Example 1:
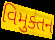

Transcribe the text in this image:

વિમુક્તન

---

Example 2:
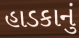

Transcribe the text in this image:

હાડકાનું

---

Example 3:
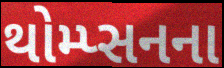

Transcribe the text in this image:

થોમ્પ્સનના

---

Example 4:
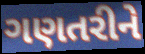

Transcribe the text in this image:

ગણતરીને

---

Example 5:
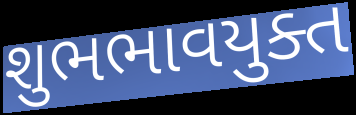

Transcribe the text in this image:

શુભભાવયુક્ત